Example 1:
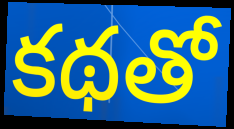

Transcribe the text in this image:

కథతో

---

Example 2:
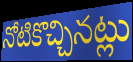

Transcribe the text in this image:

నోటికొచ్చినట్లు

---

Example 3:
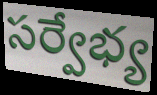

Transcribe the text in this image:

సర్వేభ్య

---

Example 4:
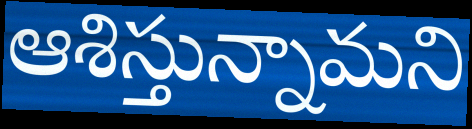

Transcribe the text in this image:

ఆశిస్తున్నామని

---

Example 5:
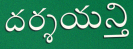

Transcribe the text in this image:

దర్శయన్తి